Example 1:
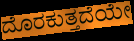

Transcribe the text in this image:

ದೊರಕುತ್ತದೆಯೇ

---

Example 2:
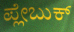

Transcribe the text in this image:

ಪ್ಲೇಬುಕ್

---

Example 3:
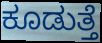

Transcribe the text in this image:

ಕೂಡುತ್ತೆ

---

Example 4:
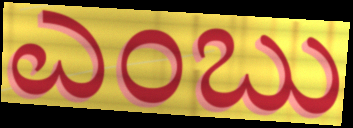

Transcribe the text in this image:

ಎಂಬು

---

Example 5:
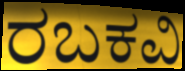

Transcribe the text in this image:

ರಬಕವಿ